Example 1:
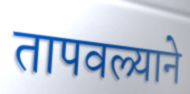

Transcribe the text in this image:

तापवल्याने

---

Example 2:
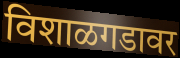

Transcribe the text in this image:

विशाळगडावर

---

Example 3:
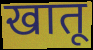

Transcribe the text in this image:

खातू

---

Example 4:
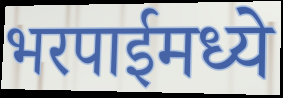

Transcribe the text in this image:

भरपाईमध्ये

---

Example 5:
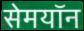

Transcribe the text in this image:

सेमयॉन